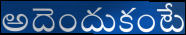
అదెందుకంటే